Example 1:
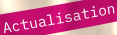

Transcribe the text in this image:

Actualisation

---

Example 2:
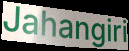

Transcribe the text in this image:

Jahangiri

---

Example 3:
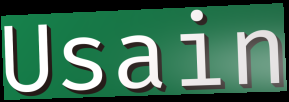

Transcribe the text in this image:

Usain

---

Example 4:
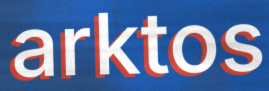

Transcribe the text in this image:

arktos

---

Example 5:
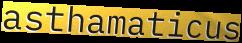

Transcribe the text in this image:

asthamaticus